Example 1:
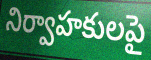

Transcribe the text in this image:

నిర్వాహకులపై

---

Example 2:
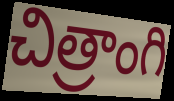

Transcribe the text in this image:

చిత్రాంగి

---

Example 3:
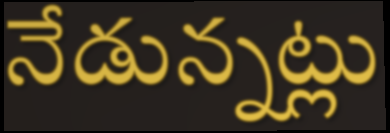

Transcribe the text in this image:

నేడున్నట్లు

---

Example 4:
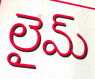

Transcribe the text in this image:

లైమ్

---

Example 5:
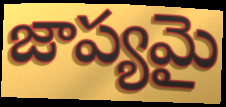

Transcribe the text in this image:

జాప్యమై